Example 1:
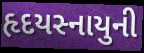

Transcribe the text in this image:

હૃદયસ્નાયુની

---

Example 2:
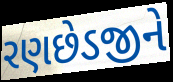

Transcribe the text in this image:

રણછેડજીને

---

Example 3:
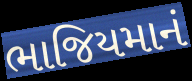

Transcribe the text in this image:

ભાજિયમાનં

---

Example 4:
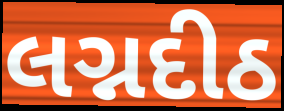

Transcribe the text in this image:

લગ્નદીઠ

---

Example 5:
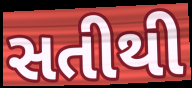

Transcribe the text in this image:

સતીથી